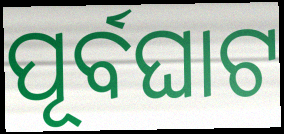
ପୂର୍ବଘାଟ